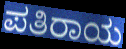
ಪತಿರಾಯ